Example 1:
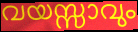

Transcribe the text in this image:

വയസ്സാവും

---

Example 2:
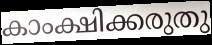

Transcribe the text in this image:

കാംക്ഷിക്കരുതു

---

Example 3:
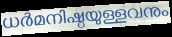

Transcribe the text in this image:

ധർമനിഷ്ഠയുള്ളവനും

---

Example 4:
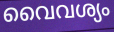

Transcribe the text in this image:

വൈവശ്യം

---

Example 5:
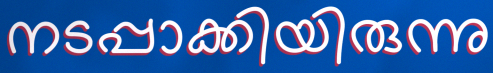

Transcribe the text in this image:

നടപ്പാക്കിയിരുന്നു